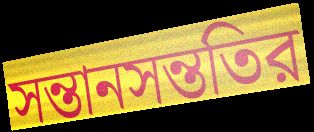
সন্তানসন্ততির